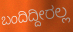
ಬಂದಿದ್ದೀರಲ್ಲ